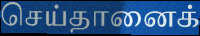
செய்தானைக்